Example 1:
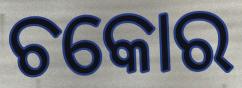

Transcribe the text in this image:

ଚକୋର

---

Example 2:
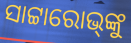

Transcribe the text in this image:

ସାଟ୍ଟାରୋଭ୍‌ଙ୍କୁ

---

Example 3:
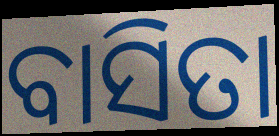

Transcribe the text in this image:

ବାସିତା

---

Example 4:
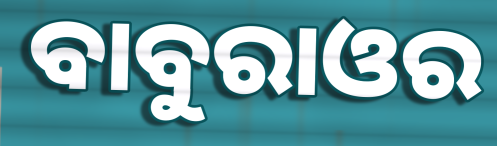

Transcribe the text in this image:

ବାବୁରାଓର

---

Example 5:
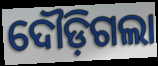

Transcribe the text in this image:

ଦୌଡ଼ିଗଲା